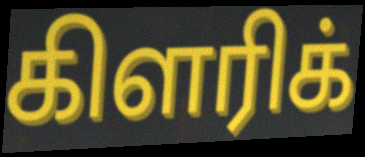
கிளரிக்